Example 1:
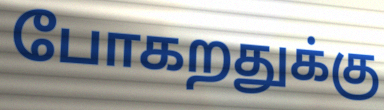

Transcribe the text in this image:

போகறதுக்கு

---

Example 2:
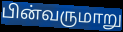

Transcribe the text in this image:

பின்வருமாறு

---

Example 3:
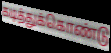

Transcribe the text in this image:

கடித்துக்கொண்டு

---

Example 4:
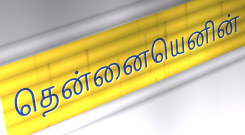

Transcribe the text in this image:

தென்னையெனின்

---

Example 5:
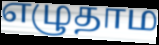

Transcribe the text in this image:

எழுதாம